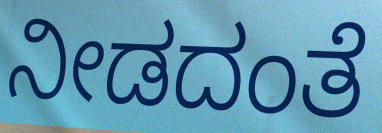
ನೀಡದಂತೆ